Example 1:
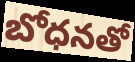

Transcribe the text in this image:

బోధనతో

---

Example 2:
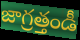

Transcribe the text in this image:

జాగ్రత్తండీ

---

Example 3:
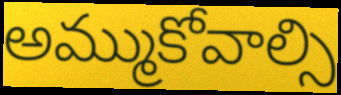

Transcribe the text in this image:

అమ్ముకోవాల్సి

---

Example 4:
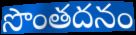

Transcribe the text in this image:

సొంతదనం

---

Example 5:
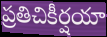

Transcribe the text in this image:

ప్రతిచికీర్షయా